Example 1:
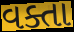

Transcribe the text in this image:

વક્તા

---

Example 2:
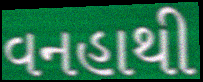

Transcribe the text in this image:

વનહાથી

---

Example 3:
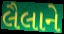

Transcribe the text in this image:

લૈલાને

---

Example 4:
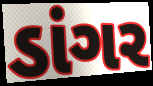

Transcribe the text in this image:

ડાંગર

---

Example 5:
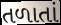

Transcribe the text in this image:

તળાતાં